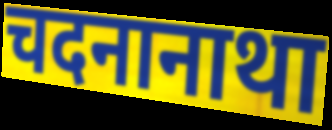
चदनानाथा